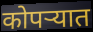
कोपऱ्यात